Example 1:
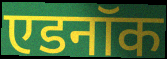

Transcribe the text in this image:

एडनॉक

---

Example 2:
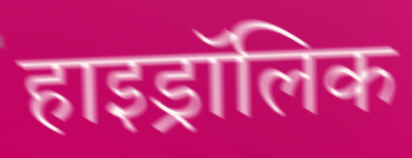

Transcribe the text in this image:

हाइड्रॉलिक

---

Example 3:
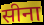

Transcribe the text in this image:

सीना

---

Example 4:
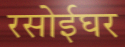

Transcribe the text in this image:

रसोईघर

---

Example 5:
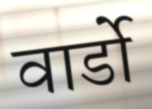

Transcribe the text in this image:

वार्डो